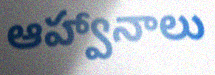
ఆహ్వానాలు